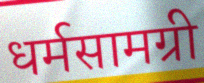
धर्मसामग्री